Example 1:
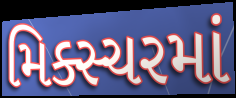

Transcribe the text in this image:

મિક્સ્ચરમાં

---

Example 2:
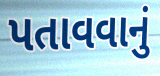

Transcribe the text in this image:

પતાવવાનું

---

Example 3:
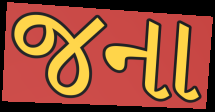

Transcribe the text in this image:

જના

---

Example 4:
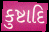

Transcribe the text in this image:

કુષ્ટાદિ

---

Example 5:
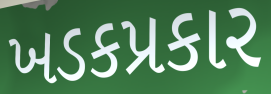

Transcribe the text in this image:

ખડકપ્રકાર